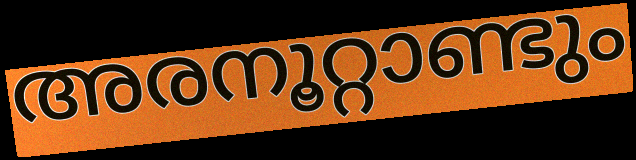
അരനൂറ്റാണ്ടും